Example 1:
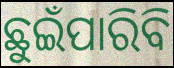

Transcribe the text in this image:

ଛୁଇଁପାରିବି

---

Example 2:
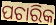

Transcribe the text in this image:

ପଚାରିକ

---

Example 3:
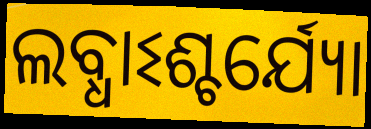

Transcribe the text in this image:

ଲବ୍ଧାଽଶ୍ଚର୍ଯ୍ୟୋ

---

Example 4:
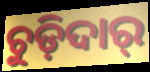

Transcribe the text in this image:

ଚୁଡ଼ିଦାର୍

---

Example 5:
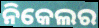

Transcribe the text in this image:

ନିକେଲର